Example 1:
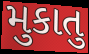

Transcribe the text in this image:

મુકાતુ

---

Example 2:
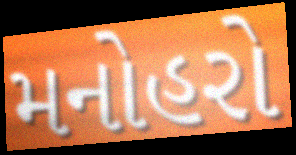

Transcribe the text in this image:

મનોહરો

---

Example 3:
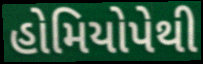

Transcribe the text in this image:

હોમિયોપેથી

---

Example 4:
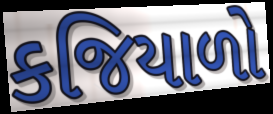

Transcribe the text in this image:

કજિયાળો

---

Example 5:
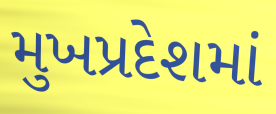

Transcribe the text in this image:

મુખપ્રદેશમાં